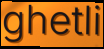
ghetli